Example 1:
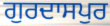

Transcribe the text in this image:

ਗੁਰਦਾਸਪੁਰ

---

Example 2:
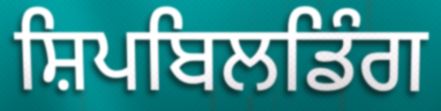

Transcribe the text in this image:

ਸ਼ਿਪਬਿਲਡਿੰਗ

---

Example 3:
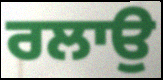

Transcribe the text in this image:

ਰਲਾਉ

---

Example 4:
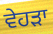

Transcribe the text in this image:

ਵੇਹੜਾ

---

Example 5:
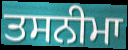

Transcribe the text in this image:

ਤਸਨੀਮਾ